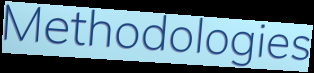
Methodologies